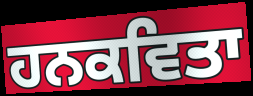
ਹਨਕਵਿਤਾ